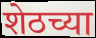
शेठच्या